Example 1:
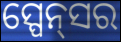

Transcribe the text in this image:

ସ୍ପେନ୍‌ସର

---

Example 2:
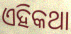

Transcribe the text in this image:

ଏହିକଥା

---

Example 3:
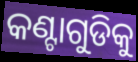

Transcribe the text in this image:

କଣ୍ଟାଗୁଡିକୁ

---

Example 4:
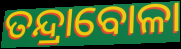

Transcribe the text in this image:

ତନ୍ଦ୍ରାବୋଳା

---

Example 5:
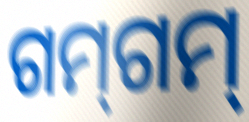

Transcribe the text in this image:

ଗମ୍‌ଗମ୍